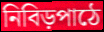
নিবিড়পাঠে